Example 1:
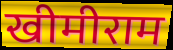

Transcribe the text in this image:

खीमीराम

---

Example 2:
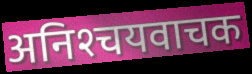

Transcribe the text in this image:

अनिश्चयवाचक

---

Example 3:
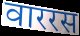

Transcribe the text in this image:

वाररस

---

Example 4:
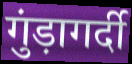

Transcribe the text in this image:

गुंड़ागर्दी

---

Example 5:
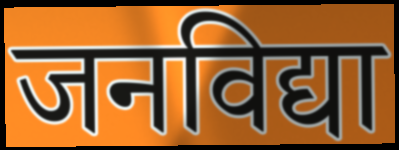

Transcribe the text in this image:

जनविद्या